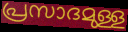
പ്രസാദമുള്ള